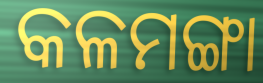
କଳମଙ୍ଗା